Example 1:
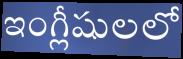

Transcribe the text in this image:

ఇంగ్లీషులలో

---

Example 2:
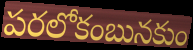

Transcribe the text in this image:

పరలోకంబునకుం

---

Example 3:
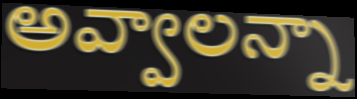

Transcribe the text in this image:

అవ్వాలన్నా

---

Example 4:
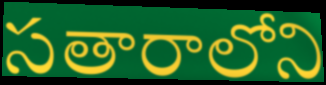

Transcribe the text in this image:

సతారాలోని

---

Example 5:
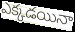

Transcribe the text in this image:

ఎక్కడయినా